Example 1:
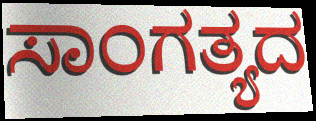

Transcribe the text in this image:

ಸಾಂಗತ್ಯದ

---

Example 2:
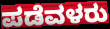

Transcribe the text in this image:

ಪಡೆವಳರು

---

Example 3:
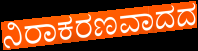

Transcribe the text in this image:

ನಿರಾಕರಣವಾದದ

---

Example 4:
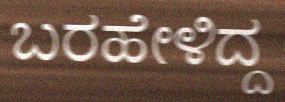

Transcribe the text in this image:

ಬರಹೇಳಿದ್ದ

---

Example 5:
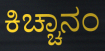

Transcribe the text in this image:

ಕಿಚ್ಚಾನಂ